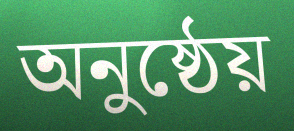
অনুষ্ঠেয়